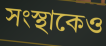
সংস্থাকেও